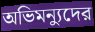
অভিমন্যুদের